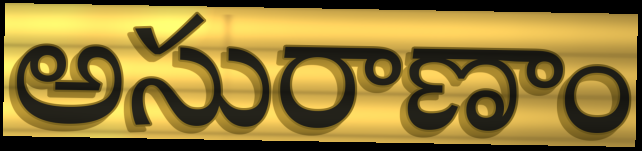
అసురాణాం